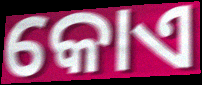
କୋଏ